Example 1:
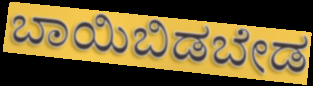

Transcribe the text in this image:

ಬಾಯಿಬಿಡಬೇಡ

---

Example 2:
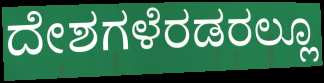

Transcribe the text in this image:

ದೇಶಗಳೆರಡರಲ್ಲೂ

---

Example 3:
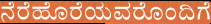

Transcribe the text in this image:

ನೆರೆಹೊರೆಯವರೊಂದಿಗೆ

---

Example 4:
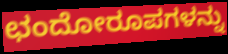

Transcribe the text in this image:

ಛಂದೋರೂಪಗಳನ್ನು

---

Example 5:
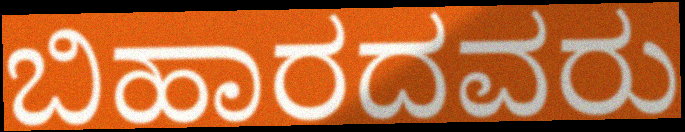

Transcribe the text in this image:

ಬಿಹಾರದವರು